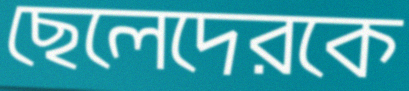
ছেলেদেরকে